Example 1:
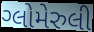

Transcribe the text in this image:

ગ્લોમેરુલી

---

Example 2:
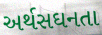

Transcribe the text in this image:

અર્થસઘનતા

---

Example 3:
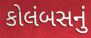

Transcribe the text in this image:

કોલંબસનું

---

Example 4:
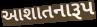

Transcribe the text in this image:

આશાતનારૂપ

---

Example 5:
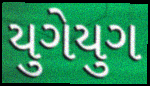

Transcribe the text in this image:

યુગેયુગ